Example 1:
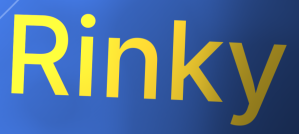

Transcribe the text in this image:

Rinky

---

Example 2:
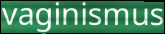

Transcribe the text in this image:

vaginismus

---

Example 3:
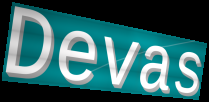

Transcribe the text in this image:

Devas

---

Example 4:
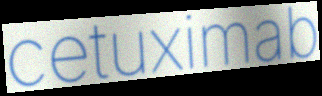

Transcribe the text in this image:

cetuximab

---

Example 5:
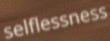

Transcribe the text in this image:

selflessness